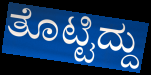
ತೊಟ್ಟಿದ್ದು